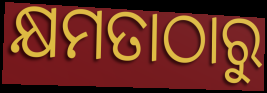
କ୍ଷମତାଠାରୁ